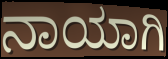
ನಾಯಾಗಿ